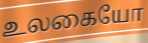
உலகையோ